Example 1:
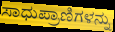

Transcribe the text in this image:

ಸಾಧುಪ್ರಾಣಿಗಳನ್ನು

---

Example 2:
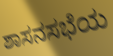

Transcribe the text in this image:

ಶಾಸನಸಭೆಯ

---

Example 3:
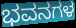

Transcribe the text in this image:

ಭವನಗಳ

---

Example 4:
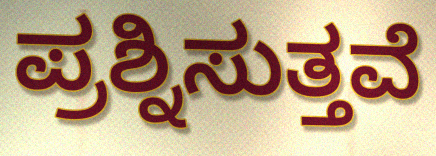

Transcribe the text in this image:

ಪ್ರಶ್ನಿಸುತ್ತವೆ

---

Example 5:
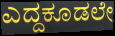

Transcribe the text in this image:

ಎದ್ದಕೂಡಲೇ